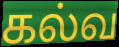
கல்வ